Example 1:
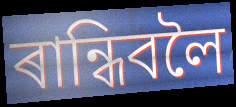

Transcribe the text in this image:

ৰান্ধিবলৈ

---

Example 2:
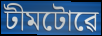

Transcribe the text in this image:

টীমটোৱে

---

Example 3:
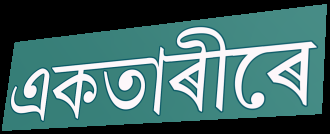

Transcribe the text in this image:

একতাৰীৰে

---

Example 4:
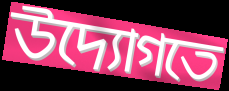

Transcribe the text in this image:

উদ্যোগতে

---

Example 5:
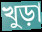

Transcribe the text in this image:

খুড়া